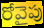
రోవైపు